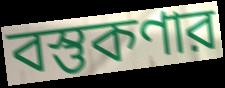
বস্তুকণার